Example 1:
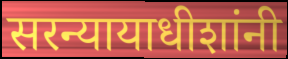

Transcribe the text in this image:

सरन्यायाधीशांनी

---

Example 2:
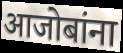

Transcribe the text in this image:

आजोबांना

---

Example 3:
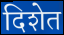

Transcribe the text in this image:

दिशेत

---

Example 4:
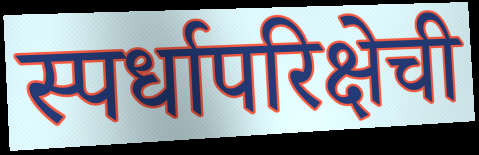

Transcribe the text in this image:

स्पर्धापरिक्षेची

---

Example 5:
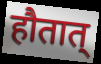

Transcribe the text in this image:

हौतात्